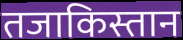
तजाकिस्‍तान